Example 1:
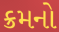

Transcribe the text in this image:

ક્રમનો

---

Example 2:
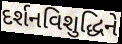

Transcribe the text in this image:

દર્શનવિશુદ્ધિને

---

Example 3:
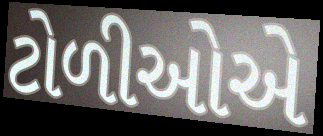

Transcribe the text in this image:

ટોળીઓએ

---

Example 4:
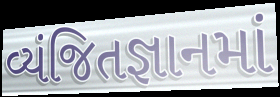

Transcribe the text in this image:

વ્યંજિતજ્ઞાનમાં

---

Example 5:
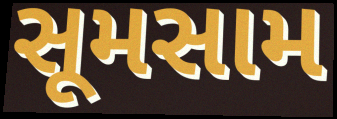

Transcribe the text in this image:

સૂમસામ